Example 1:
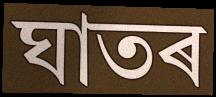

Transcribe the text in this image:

ঘাতৰ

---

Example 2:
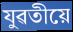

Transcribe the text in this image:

যুৱতীয়ে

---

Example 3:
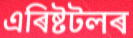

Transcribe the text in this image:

এৰিষ্টটলৰ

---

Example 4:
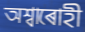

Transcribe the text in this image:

অশ্বাৰোহী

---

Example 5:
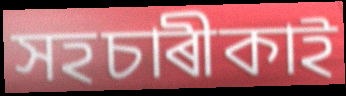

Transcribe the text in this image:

সহচাৰীকাই